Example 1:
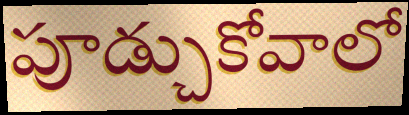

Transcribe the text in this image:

పూడ్చుకోవాలో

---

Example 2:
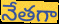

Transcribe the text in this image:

నేతగా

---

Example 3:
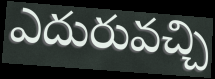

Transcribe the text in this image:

ఎదురువచ్చి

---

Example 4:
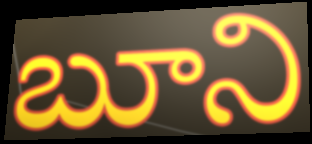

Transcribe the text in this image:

బూని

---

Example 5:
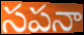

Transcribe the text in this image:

సపనా